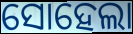
ସୋହେଲା